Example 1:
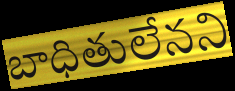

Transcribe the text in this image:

బాధితులేనని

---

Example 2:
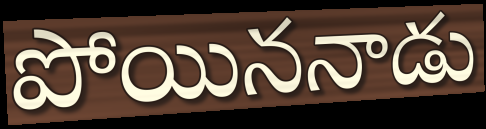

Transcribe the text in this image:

పోయిననాడు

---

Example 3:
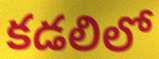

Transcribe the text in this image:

కడలిలో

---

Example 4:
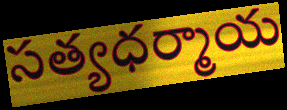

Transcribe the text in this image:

సత్యధర్మాయ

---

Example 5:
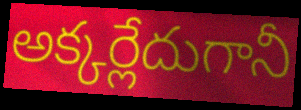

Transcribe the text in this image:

అక్కర్లేదుగానీ